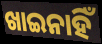
ଖାଇନାହିଁ